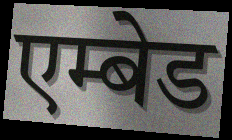
एम्बेड